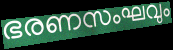
ഭരണസംഘവും